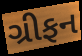
ગ્રીફન